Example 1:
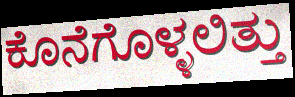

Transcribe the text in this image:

ಕೊನೆಗೊಳ್ಳಲಿತ್ತು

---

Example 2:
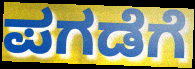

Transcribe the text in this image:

ಪಗಡೆಗೆ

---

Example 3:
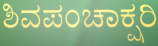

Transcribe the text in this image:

ಶಿವಪಂಚಾಕ್ಷರಿ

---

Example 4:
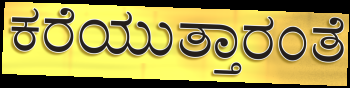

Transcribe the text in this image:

ಕರೆಯುತ್ತಾರಂತೆ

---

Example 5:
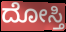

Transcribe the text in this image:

ದೋಸ್ತಿ